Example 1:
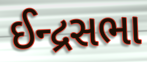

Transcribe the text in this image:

ઈન્દ્રસભા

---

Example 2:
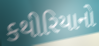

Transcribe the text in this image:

કથીરિયાનો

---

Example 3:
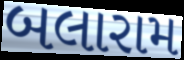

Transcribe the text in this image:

બલારામ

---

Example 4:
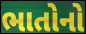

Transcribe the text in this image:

ભાતોનો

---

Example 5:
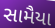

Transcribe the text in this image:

સામૈયા